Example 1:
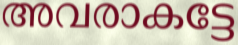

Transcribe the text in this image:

അവരാകട്ടേ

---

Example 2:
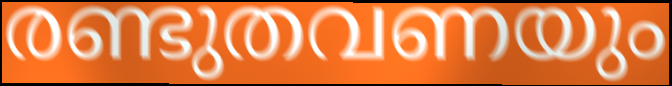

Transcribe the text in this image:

രണ്ടുതവണയും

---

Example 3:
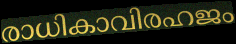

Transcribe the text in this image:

രാധികാവിരഹജം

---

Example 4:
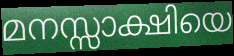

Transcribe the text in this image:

മനസ്സാക്ഷിയെ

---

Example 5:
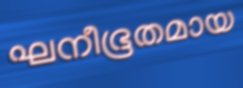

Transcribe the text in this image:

ഘനീഭൂതമായ